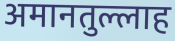
अमानतुल्लाह